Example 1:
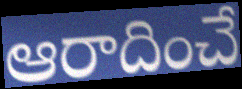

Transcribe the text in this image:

ఆరాదించే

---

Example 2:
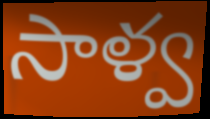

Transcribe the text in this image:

సాళ్వ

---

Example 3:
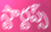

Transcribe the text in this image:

స్టార్టప్స్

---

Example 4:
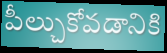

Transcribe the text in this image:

పీల్చుకోవడానికి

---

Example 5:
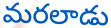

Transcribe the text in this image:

మరలాడు